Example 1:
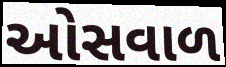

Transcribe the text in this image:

ઓસવાળ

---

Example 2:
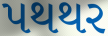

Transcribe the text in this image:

પથથર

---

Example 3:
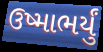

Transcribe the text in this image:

ઉષ્માભર્યું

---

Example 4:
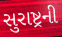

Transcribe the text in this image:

સુરાષ્ટ્રની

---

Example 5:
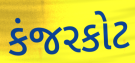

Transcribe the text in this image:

કંજરકોટ